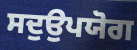
ਸਦੁਉਪਯੋਗ